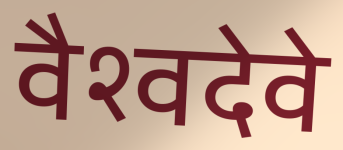
वैश्वदेवे